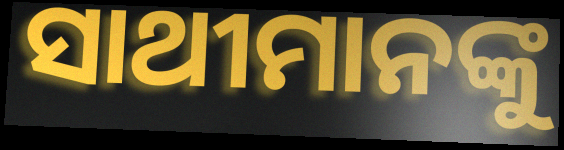
ସାଥୀମାନଙ୍କୁ